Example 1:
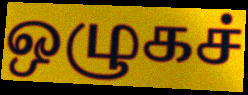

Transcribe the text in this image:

ஒழுகச்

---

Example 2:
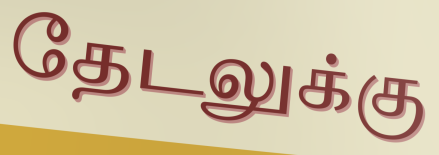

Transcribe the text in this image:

தேடலுக்கு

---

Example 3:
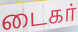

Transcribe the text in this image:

டைகர்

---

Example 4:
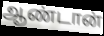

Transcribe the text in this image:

ஆண்டான்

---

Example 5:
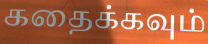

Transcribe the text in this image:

கதைக்கவும்